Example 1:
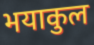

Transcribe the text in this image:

भयाकुल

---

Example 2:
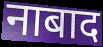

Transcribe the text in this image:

नाबाद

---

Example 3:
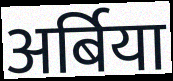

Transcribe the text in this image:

अर्बिया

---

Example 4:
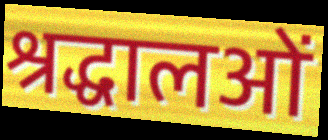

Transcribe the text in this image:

श्रद्धालओं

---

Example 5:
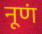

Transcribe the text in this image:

नूणं